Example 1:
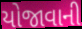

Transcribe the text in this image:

યોજાવાની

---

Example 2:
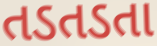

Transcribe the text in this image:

તડતડતા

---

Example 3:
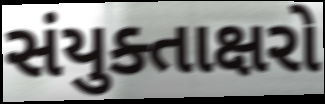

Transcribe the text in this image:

સંયુક્તાક્ષરો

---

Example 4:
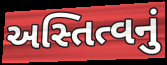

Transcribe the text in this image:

અસ્તિત્વનું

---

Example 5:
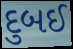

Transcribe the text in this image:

દુબઈ